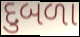
દુબળા